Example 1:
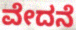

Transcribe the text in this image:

ವೇದನೆ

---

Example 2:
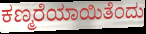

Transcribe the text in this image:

ಕಣ್ಮರೆಯಾಯಿತೆಂದು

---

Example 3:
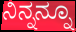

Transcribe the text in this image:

ನಿನ್ನನ್ನೂ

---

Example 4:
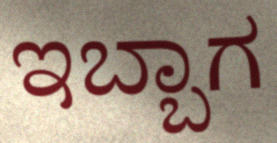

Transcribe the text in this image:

ಇಬ್ಬಾಗ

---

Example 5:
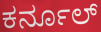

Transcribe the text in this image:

ಕರ್ನೂಲ್